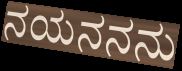
ನಯನನನು